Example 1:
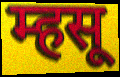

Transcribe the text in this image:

म्हसू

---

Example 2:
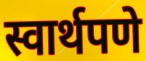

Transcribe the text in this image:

स्वार्थपणे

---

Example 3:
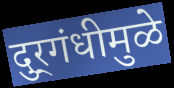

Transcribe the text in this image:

दुर्गंधीमुळे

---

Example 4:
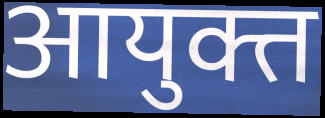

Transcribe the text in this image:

आयुक्त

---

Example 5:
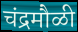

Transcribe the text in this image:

चंद्रमौळी